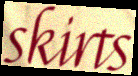
skirts